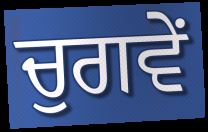
ਚੁਗਵੇਂ